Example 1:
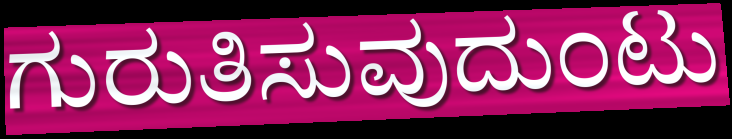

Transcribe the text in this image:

ಗುರುತಿಸುವುದುಂಟು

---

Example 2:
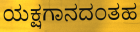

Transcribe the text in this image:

ಯಕ್ಷಗಾನದಂತಹ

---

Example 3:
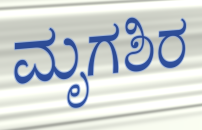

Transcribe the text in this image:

ಮೃಗಶಿರ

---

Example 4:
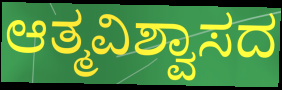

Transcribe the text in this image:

ಆತ್ಮವಿಶ್ವಾಸದ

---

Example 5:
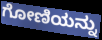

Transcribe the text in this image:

ಗೋಣಿಯನ್ನು